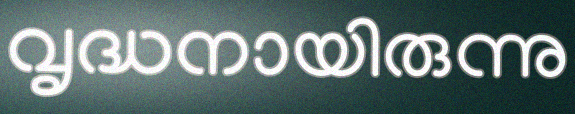
വൃദ്ധനായിരുന്നു